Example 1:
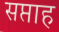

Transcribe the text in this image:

सप्ताह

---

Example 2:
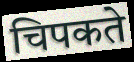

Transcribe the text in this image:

चिपकते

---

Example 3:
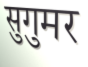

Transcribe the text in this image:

सुगुमर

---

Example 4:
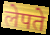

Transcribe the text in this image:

लेपते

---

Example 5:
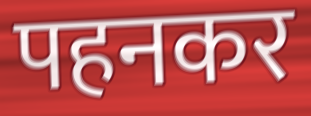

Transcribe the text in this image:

पहनकर